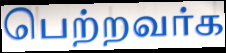
பெற்றவர்க